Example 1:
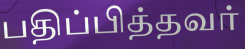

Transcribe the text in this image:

பதிப்பித்தவர்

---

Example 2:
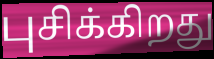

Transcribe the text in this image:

புசிக்கிறது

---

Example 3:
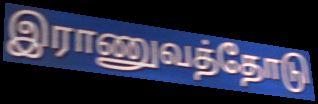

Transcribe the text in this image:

இராணுவத்தோடு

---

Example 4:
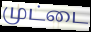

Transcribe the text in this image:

முட்டை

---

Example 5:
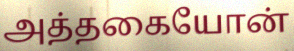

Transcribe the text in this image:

அத்தகையோன்